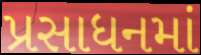
પ્રસાધનમાં